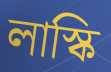
লাস্কি